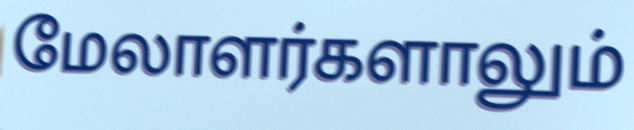
மேலாளர்களாலும்